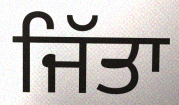
ਜਿੱਤਾ